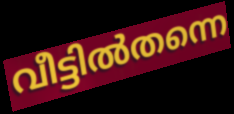
വീട്ടിൽതന്നെ